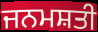
ਜਨਮਸ਼ਤੀ